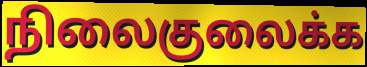
நிலைகுலைக்க